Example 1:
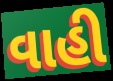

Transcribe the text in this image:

વાહી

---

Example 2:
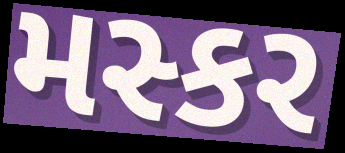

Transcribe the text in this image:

મસ્કર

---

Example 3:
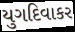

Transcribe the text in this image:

યુગદિવાકર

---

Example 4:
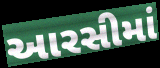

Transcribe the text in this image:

આરસીમાં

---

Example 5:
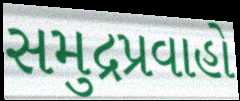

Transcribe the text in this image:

સમુદ્રપ્રવાહો